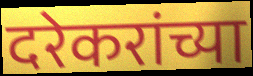
दरेकरांच्या